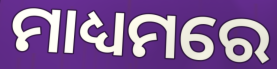
ମାଧ୍ୟମରେ